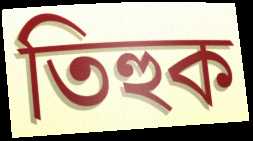
তিহুক